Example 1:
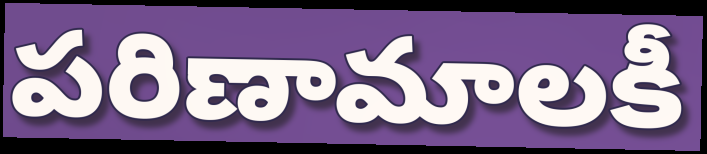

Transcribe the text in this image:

పరిణామాలకీ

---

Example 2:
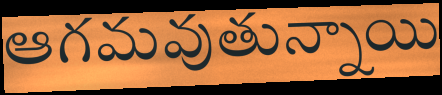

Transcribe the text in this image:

ఆగమవుతున్నాయి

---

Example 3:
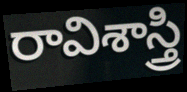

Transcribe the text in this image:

రావిశాస్త్రి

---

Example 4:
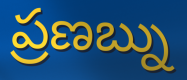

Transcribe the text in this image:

ప్రణబ్ను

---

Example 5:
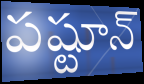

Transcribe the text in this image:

పష్టూన్